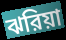
ঝরিয়া